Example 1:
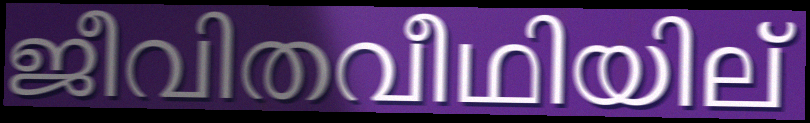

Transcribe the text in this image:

ജീവിതവീഥിയില്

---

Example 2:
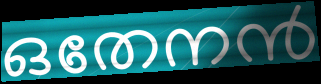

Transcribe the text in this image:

ഒതേനൻ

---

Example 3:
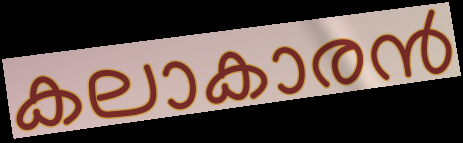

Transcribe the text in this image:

കലാകാരൻ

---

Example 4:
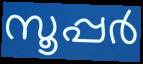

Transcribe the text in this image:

സൂപ്പർ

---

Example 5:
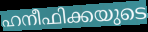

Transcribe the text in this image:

ഹനീഫിക്കയുടെ